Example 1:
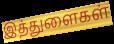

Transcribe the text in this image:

இத்துளைகள்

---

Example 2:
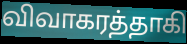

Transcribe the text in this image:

விவாகரத்தாகி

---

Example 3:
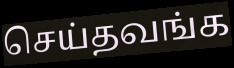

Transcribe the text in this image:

செய்தவங்க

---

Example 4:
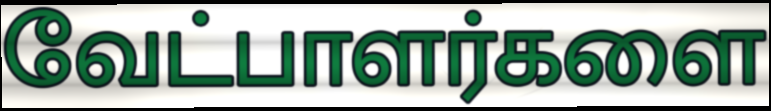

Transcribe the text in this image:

வேட்பாளர்களை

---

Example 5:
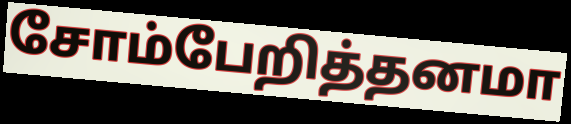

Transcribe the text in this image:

சோம்பேறித்தனமா